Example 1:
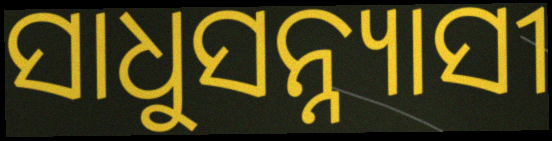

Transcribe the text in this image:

ସାଧୁସନ୍ନ୍ୟାସୀ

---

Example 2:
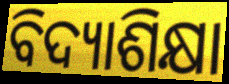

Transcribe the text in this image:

ବିଦ୍ୟାଶିକ୍ଷା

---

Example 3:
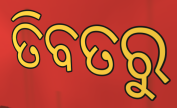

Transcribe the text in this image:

ତିବତରୁ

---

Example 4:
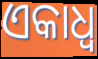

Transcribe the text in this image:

ଏକାଧ୍ଵ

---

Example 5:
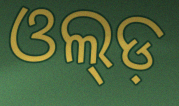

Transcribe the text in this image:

ଓଲ୍ଡ଼